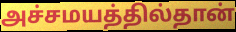
அச்சமயத்தில்தான்